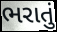
ભરાતું